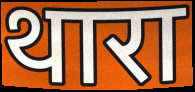
थारा